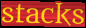
stacks